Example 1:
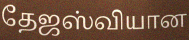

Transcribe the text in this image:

தேஜஸ்வியான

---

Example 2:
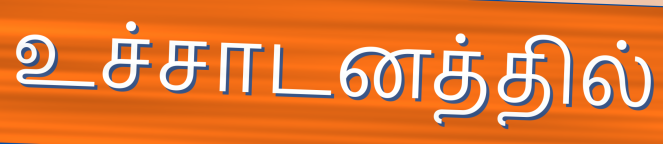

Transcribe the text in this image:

உச்சாடனத்தில்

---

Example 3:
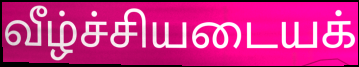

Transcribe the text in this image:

வீழ்ச்சியடையக்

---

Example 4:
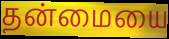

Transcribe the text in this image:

தன்மையை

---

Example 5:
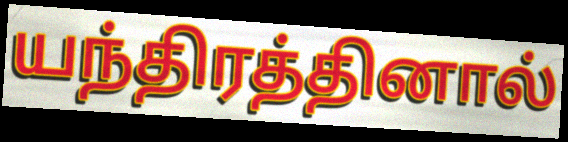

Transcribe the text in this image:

யந்திரத்தினால்